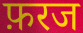
फ़रज